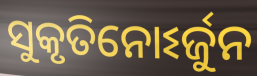
ସୁକୃତିନୋଽର୍ଜୁନ